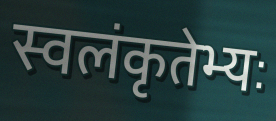
स्वलंकृतेभ्यः